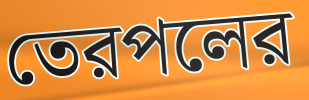
তেরপলের